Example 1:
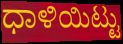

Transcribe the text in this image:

ಧಾಳಿಯಿಟ್ಟು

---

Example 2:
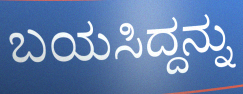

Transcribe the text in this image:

ಬಯಸಿದ್ದನ್ನು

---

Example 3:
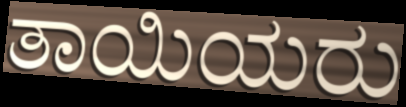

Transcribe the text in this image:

ತಾಯಿಯರು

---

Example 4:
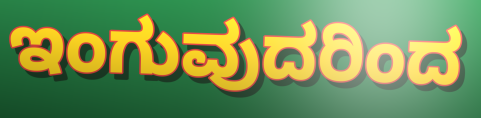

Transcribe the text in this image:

ಇಂಗುವುದರಿಂದ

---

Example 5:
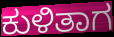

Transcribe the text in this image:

ಕುಳಿತಾಗ